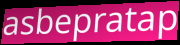
asbepratap